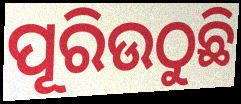
ପୂରିଉଠୁଛି